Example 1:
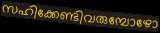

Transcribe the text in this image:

സഹിക്കേണ്ടിവരുമ്പോഴോ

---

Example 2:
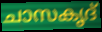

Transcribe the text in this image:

ചാസകൃദ്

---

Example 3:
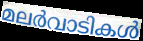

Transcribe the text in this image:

മലർവാടികൾ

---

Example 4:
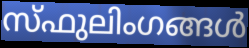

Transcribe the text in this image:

സ്ഫുലിംഗങ്ങൾ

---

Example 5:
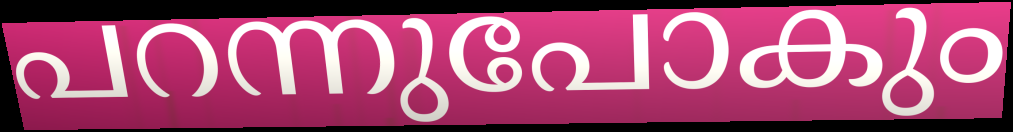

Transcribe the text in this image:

പറന്നുപോകും